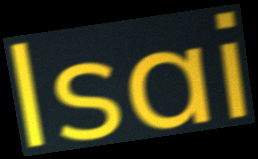
Isai